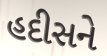
હદીસને